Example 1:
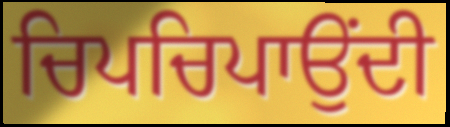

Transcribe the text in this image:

ਚਿਪਚਿਪਾਉਂਦੀ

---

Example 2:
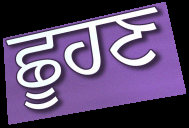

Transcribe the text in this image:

ਛੂਹਣ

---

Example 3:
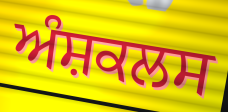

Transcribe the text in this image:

ਅੰਸ਼ਕਲਸ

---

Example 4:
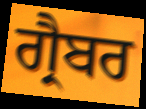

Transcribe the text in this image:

ਗ੍ਰੈਬਰ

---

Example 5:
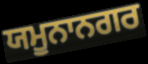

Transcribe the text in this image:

ਯਮੂਨਾਨਗਰ